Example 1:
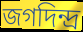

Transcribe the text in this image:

জগদিন্দ্র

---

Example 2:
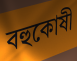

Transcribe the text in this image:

বহুকোষী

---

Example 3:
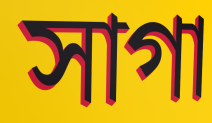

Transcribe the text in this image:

সাগা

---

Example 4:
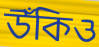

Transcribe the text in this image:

উঁকিও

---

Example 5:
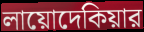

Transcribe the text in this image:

লায়োদেকিয়ার